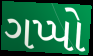
ગપ્પો